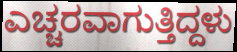
ಎಚ್ಚರವಾಗುತ್ತಿದ್ದಳು